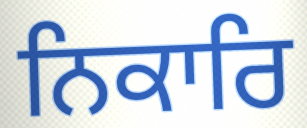
ਨਿਕਾਰਿ